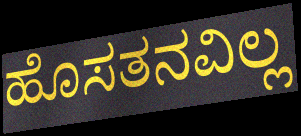
ಹೊಸತನವಿಲ್ಲ